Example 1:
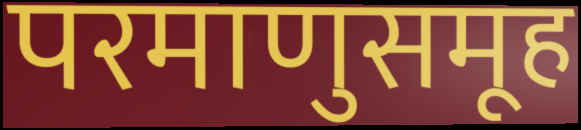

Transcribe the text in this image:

परमाणुसमूह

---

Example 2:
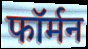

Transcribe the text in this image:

फॉर्मन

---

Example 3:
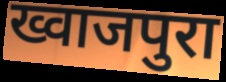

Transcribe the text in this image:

ख्वाजपुरा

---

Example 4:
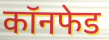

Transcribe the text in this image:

कॉनफेड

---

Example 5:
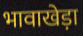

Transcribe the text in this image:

भावाखेड़ा